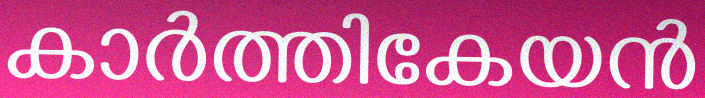
കാർത്തികേയൻ